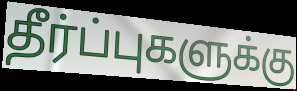
தீர்ப்புகளுக்கு